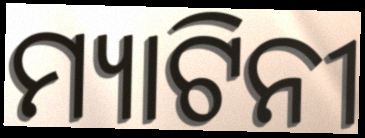
ମ୍ୟାଟିନୀ